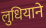
लुधियाने